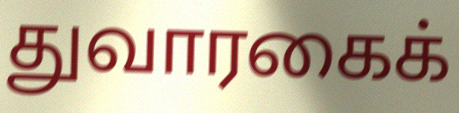
துவாரகைக்